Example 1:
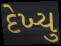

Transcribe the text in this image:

દેખ્યુ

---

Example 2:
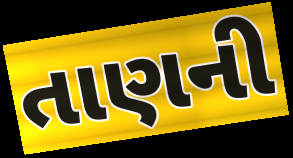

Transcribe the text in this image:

તાણની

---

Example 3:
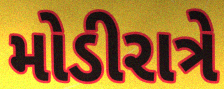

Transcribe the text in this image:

મોડીરાત્રે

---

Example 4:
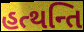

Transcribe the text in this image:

હત્થન્તિ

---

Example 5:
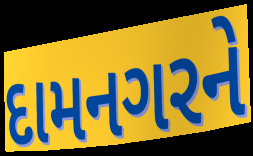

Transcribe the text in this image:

દામનગરને